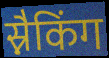
स्नैकिंग